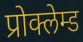
प्रोक्लेम्ड